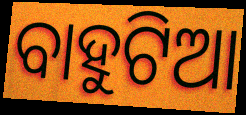
ବାହୁଟିଆ